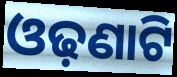
ଓଢ଼ଣାଟି